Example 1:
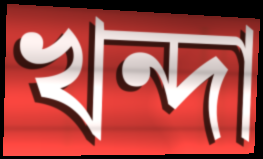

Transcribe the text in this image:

খন্দা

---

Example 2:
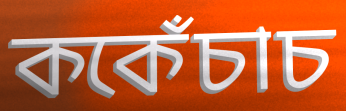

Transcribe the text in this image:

ককেঁচাচ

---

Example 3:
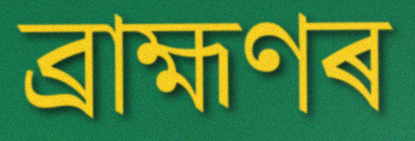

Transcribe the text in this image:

ব্ৰাহ্মণৰ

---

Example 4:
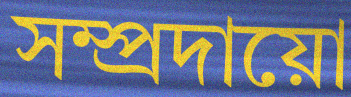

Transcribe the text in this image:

সম্প্ৰদায়ো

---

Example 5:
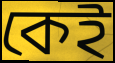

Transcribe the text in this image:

কেই